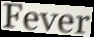
Fever